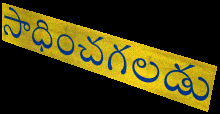
సాధించగలడు